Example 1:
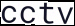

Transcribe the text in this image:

cctv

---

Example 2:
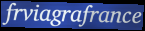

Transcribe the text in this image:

frviagrafrance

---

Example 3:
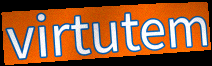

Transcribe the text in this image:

virtutem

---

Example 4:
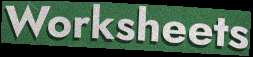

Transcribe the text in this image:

Worksheets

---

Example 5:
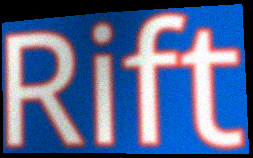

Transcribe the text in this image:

Rift